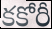
కకోరీ